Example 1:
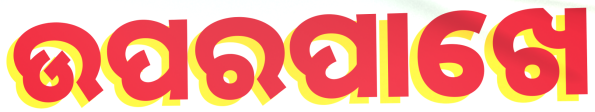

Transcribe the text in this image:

ଉପରପାଖେ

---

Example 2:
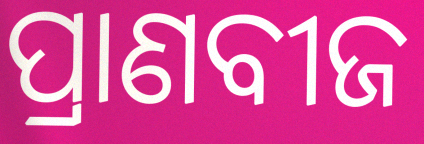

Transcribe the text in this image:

ପ୍ରାଣବୀଜ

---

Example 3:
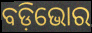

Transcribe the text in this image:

ବଡ଼ିଭୋର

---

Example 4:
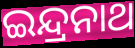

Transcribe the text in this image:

ଇନ୍ଦ୍ରନାଥ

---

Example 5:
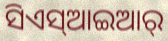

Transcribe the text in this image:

ସିଏସ୍ଆଇଆର୍